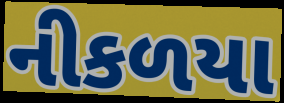
નીકળયા